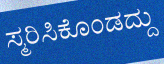
ಸ್ಮರಿಸಿಕೊಂಡದ್ದು